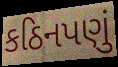
કઠિનપણું